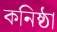
কনিষ্ঠা